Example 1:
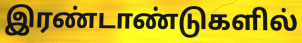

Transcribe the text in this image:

இரண்டாண்டுகளில்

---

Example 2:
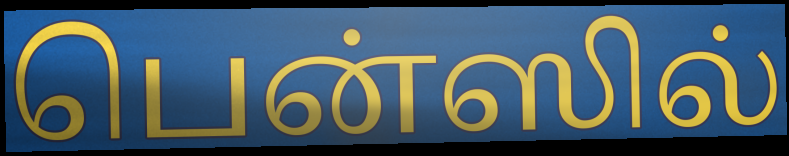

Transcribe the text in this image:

பென்ஸில்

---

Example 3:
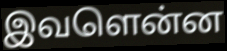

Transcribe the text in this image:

இவளென்ன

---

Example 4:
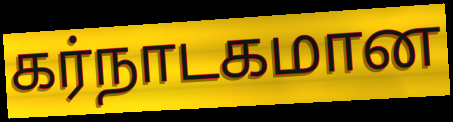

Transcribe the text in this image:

கர்நாடகமான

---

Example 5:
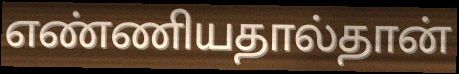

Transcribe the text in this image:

எண்ணியதால்தான்